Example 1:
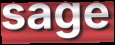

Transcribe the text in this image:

sage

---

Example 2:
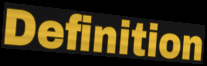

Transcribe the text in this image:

Definition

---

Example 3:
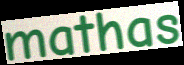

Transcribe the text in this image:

mathas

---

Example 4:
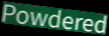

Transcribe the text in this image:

Powdered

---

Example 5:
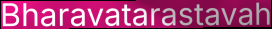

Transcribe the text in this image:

Bharavatarastavah